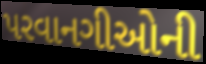
પરવાનગીઓની